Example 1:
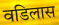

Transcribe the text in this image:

वडिलास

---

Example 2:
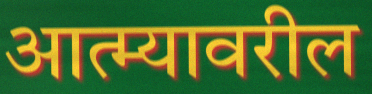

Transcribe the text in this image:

आत्म्यावरील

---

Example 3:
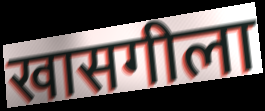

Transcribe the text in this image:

खासगीला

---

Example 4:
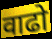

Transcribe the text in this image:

वाढो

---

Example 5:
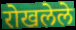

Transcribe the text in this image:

रोखलेले